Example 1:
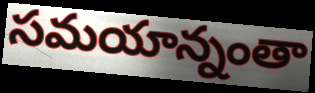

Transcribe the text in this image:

సమయాన్నంతా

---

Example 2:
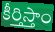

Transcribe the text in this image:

కీర్తిస్తాం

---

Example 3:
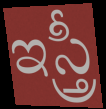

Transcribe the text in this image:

ఇస్త్రీ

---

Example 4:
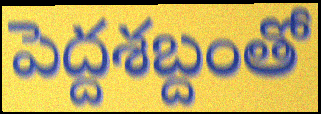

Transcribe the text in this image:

పెద్దశబ్దంతో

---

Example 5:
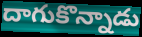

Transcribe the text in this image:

దాగుకొన్నాడు